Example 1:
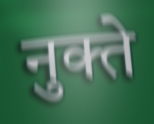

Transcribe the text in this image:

नुक्ते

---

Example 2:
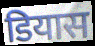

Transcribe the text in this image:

डियास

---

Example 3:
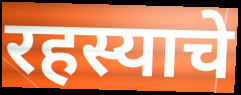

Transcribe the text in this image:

रहस्याचे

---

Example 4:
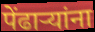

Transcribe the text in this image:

पेंढाऱ्यांना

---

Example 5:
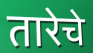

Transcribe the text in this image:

तारेचे